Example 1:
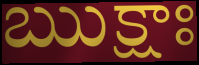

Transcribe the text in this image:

ఋక్షాః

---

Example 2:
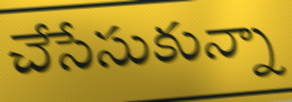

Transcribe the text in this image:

చేసేసుకున్నా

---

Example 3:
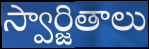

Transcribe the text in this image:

స్వార్జితాలు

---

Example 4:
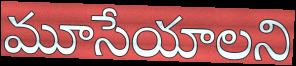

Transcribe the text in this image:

మూసేయాలని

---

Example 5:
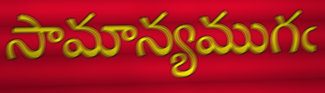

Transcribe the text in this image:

సామాన్యముగఁ